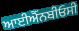
ਆਈਐੱਨਬੀਓਸੀ